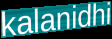
kalanidhi